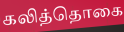
கலித்தொகை